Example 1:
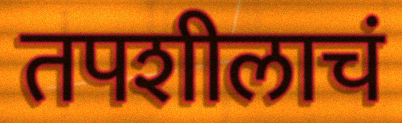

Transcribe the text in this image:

तपशीलाचं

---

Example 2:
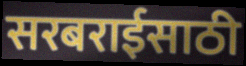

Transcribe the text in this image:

सरबराईसाठी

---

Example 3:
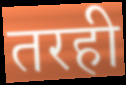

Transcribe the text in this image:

तरही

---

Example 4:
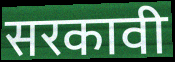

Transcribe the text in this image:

सरकावी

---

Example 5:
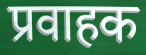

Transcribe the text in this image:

प्रवाहक